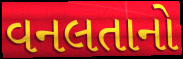
વનલતાનો